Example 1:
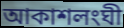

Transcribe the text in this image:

আকাশলংঘী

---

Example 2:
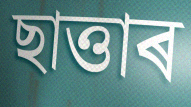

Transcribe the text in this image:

ছাত্তাৰ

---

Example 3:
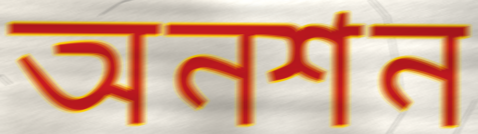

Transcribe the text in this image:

অনশন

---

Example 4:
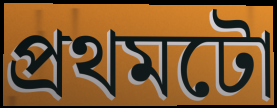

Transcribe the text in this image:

প্ৰথমটো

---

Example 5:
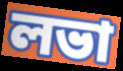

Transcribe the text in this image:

লভা